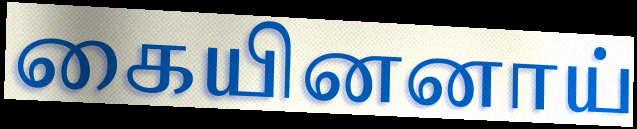
கையினனாய்